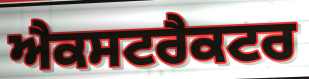
ਐਕਸਟਰੈਕਟਰ